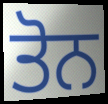
ਤੋਨ